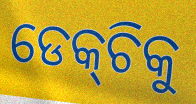
ଡେକ୍‌ଚିକୁ